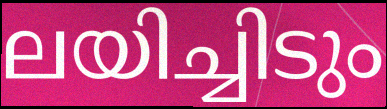
ലയിച്ചിടും